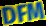
DFM